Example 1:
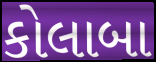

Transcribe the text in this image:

કોલાબા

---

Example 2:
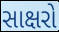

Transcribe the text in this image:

સાક્ષરો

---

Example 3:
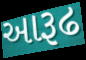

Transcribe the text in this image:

આરૂઢ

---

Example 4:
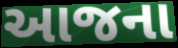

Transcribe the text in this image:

આજના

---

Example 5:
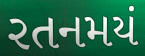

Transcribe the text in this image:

રતનમયં